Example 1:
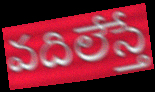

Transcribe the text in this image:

వదిలేస్తే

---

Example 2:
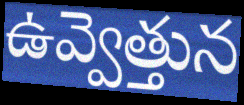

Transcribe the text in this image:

ఉవ్వెత్తున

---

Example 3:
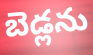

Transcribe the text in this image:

బెడ్లను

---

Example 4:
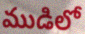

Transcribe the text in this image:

ముడిలో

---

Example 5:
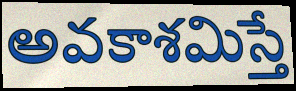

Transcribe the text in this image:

అవకాశమిస్తే